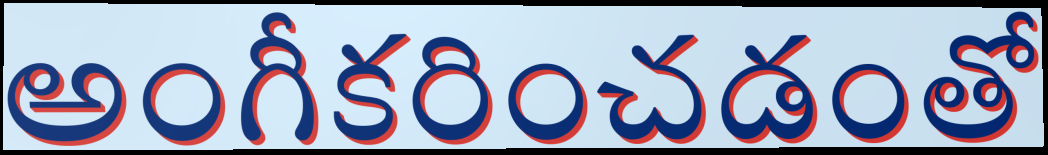
అంగీకరించడంతో